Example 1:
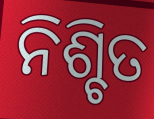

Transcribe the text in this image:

ନିଶ୍ଚିତ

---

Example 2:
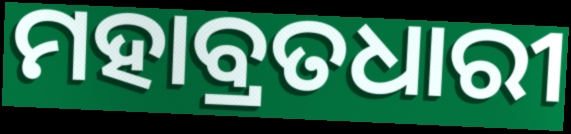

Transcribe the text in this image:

ମହାବ୍ରତଧାରୀ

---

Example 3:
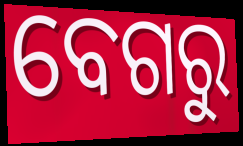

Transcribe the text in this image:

ବେଗରୁ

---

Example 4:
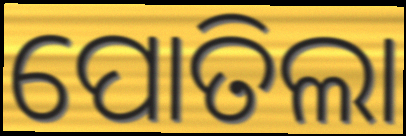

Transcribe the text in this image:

ପୋତିଲା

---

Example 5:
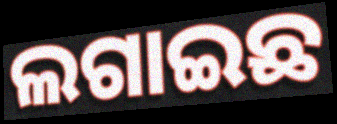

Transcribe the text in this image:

ଲଗାଇଛ